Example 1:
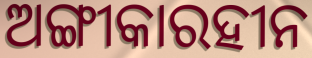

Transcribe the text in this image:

ଅଙ୍ଗୀକାରହୀନ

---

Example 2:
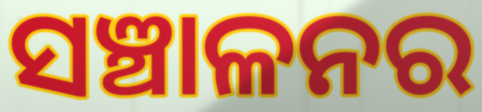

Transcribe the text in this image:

ସଞ୍ଚାଳନର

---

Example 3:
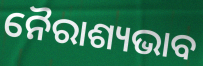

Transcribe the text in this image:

ନୈରାଶ୍ୟଭାବ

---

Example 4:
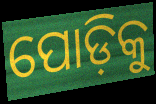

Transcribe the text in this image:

ପୋଡ଼ିକୁ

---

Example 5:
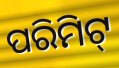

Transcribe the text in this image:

ପରିମିଟ୍